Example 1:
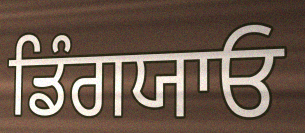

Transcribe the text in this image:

ਡਿੰਗਯਾਓ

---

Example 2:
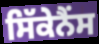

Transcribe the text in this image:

ਸਿੱਕੇਨੈਂਸ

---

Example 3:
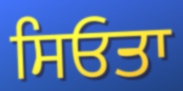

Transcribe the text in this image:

ਸਿਓਤਾ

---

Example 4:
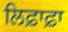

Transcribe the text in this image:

ਲਿਫ਼ਾਫ਼ਾ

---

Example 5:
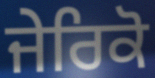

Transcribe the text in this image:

ਜੇਰਿਕੋ